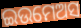
ଇଉମେଅସ